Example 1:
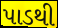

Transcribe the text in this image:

પાડથી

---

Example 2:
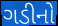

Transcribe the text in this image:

ગડીનો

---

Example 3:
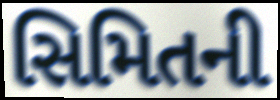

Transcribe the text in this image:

સિમિતની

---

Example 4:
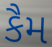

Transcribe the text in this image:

કૈમ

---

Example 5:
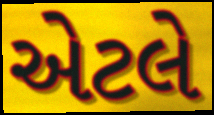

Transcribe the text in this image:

એટલે